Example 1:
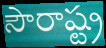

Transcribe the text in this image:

సౌరాష్ట్ర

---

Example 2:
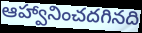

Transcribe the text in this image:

ఆహ్వానించదగినది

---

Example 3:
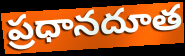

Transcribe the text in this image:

ప్రధానదూత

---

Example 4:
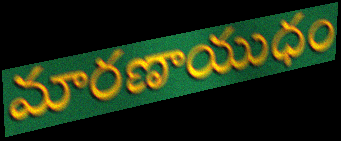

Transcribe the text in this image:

మారణాయుధం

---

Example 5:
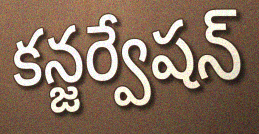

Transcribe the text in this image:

కన్జర్వేషన్